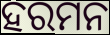
ହରମନ